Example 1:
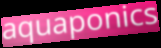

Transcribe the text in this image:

aquaponics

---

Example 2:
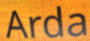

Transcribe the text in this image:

Arda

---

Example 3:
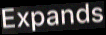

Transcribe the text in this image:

Expands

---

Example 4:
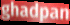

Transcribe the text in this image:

ghadpan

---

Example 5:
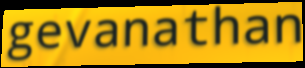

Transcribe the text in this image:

gevanathan